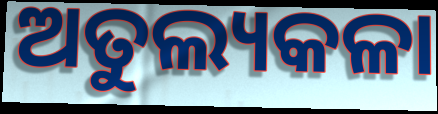
ଅତୁଲ୍ୟକଳା